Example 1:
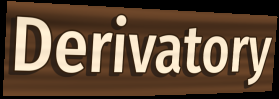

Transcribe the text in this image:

Derivatory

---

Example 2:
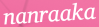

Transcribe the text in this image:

nanraaka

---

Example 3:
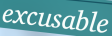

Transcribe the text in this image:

excusable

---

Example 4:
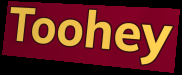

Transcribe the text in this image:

Toohey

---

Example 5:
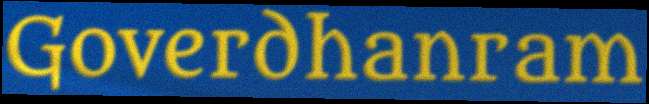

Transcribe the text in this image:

Goverdhanram